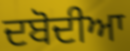
ਦਬੋਦੀਆ